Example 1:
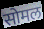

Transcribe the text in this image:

सोमल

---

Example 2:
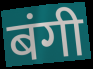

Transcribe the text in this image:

बंगी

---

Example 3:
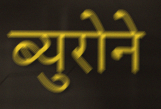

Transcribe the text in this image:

ब्युरोने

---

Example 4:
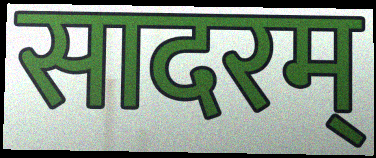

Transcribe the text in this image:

सादरम्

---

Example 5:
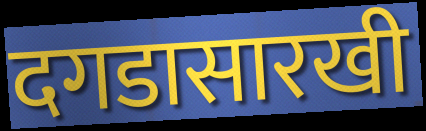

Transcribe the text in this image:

दगडासारखी